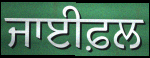
ਜਾਈਫ਼ਲ